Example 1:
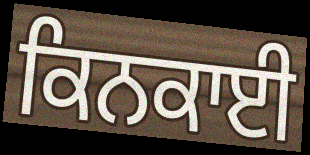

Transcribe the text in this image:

ਕਿਨਕਾਈ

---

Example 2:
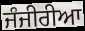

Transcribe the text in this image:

ਜੰਜੀਰੀਆ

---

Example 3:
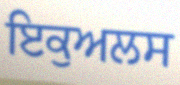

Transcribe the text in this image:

ਇਕੁਅਲਸ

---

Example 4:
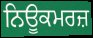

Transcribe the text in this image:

ਨਿਊਕਮਰਜ਼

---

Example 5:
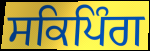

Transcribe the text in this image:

ਸਕਿਪਿੰਗ